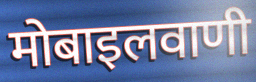
मोबाइलवाणी